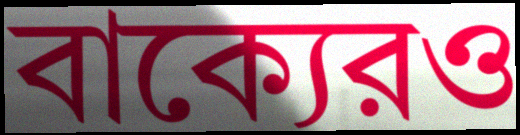
বাক্যেরও